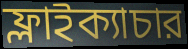
ফ্লাইক্যাচার